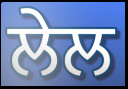
ਲੇਲ